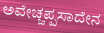
ಅವೇಚ್ಚಪ್ಪಸಾದೇನ